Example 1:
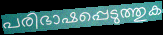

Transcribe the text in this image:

പരിഭാഷപ്പെടുത്തുക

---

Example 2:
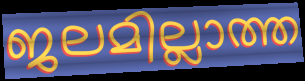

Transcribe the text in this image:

ജലമില്ലാത്ത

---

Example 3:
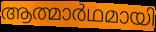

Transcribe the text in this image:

ആത്മാർഥമായി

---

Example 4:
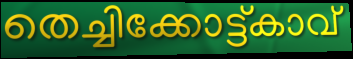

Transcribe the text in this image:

തെച്ചിക്കോട്ട്കാവ്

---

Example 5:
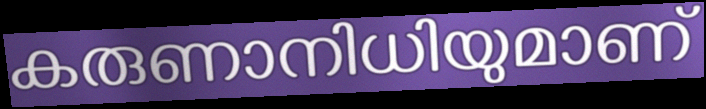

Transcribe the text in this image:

കരുണാനിധിയുമാണ്